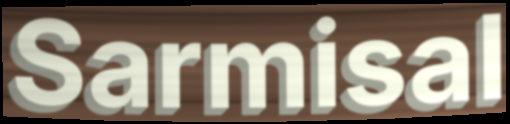
Sarmisal